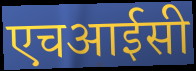
एचआईसी